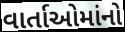
વાર્તાઓમાંનો